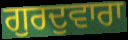
ਗੁਰਦੁਵਾਰਾ